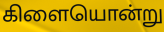
கிளையொன்று